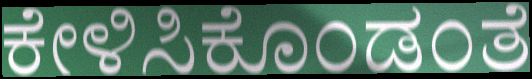
ಕೇಳಿಸಿಕೊಂಡಂತೆ